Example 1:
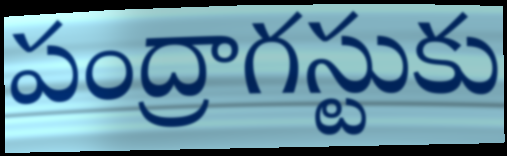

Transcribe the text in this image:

పంద్రాగస్టుకు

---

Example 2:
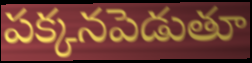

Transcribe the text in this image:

పక్కనపెడుతూ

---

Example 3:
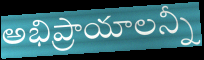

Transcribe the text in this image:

అభిప్రాయాలన్నీ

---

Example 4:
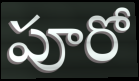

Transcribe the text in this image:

పూరో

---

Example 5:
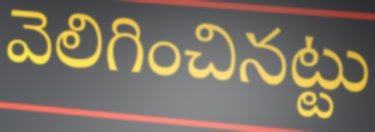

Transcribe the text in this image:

వెలిగించినట్టు